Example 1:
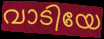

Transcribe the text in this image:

വാടിയേ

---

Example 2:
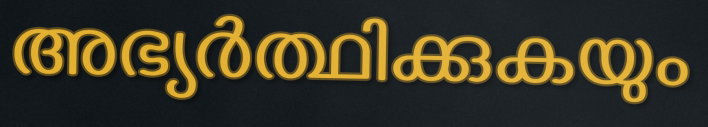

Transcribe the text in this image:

അഭ്യർത്ഥിക്കുകയും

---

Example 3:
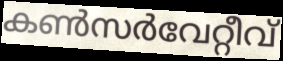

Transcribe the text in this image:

കൺസർവേറ്റീവ്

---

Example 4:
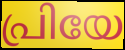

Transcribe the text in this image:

പ്രിയേ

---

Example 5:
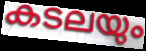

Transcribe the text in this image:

കടലയും